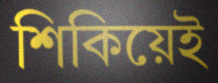
শিকিয়েই